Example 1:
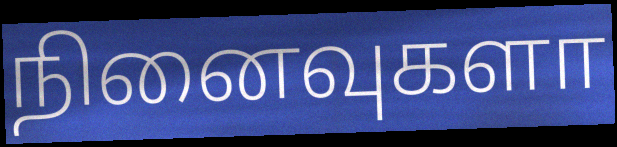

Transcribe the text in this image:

நினைவுகளா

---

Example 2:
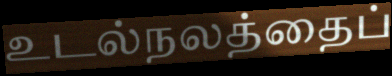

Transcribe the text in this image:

உடல்நலத்தைப்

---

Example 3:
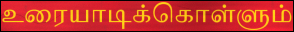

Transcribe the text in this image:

உரையாடிக்கொள்ளும்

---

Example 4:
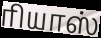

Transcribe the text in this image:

ரியாஸ்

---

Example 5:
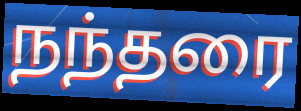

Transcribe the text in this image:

நந்தரை